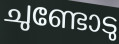
ചുണ്ടോടു